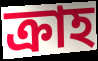
ক্রাহ